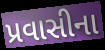
પ્રવાસીના